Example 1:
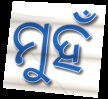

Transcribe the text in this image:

ମୁହଁ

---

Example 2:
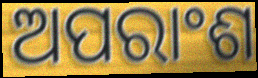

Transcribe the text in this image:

ଅପରାଂଶ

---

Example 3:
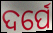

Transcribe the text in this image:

ଦର୍ପେ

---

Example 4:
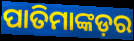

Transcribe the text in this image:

ପାତିମାଙ୍କଡ଼ର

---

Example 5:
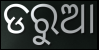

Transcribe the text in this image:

ଡରୁଆ